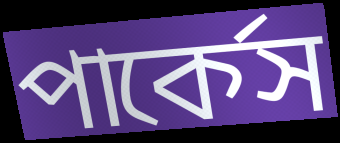
পার্কেস